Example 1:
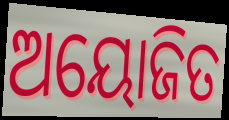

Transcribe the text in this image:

ଅୟୋଜିତ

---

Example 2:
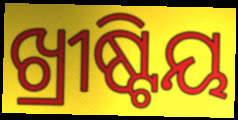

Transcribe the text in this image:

ଖ୍ରୀଷ୍ଟିୟ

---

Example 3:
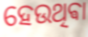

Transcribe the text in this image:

ହେଉଥିଵା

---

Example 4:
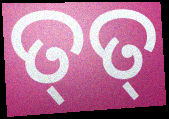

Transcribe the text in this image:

ତ୍‌ତ୍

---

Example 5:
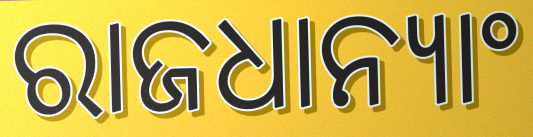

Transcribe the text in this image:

ରାଜଧାନ୍ୟାଂ